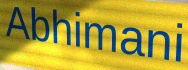
Abhimani